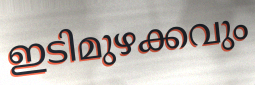
ഇടിമുഴക്കവും